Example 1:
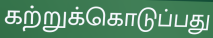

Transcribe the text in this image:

கற்றுக்கொடுப்பது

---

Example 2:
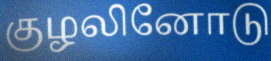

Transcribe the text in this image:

குழலினோடு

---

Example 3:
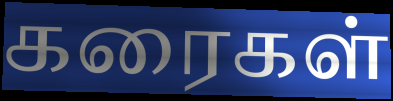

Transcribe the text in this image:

கரைகள்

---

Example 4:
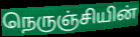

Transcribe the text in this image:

நெருஞ்சியின்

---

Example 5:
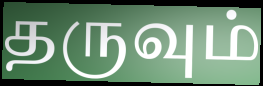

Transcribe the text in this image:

தருவும்